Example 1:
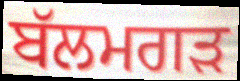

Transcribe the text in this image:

ਬੱਲਮਗੜ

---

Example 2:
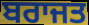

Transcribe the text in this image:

ਬਰਾਜਤ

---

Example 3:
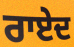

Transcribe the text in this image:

ਰਾਏਦ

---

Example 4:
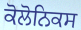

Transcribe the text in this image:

ਕੋਲੋਨਿਕਸ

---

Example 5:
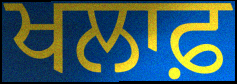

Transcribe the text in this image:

ਖਲਾਫ਼